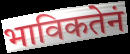
भाविकतेनं